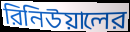
রিনিউয়ালের